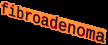
fibroadenoma